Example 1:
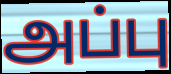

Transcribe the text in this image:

அப்பு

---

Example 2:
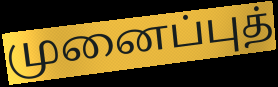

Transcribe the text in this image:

முனைப்புத்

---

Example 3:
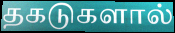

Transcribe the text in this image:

தகடுகளால்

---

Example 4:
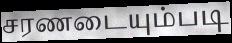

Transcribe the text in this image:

சரணடையும்படி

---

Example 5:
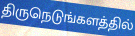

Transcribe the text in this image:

திருநெடுங்களத்தில்